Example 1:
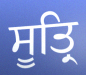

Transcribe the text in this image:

ਸੂਤ੍ਰਿ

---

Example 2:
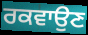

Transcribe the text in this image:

ਰਕਵਾਉਣ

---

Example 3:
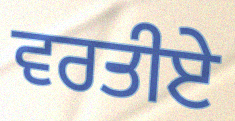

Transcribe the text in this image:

ਵਰਤੀਏ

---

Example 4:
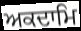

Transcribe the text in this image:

ਅਕਦਾਮਿ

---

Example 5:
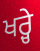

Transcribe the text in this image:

ਖਰ੍ਚੇ